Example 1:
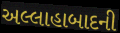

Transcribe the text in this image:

અલ્લાહાબાદની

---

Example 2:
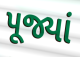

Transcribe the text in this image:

પૂજ્યાં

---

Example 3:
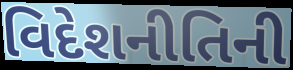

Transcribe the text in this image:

વિદેશનીતિની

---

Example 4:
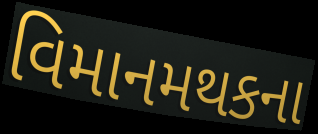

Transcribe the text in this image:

વિમાનમથકના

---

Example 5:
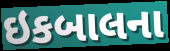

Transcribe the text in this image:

ઇકબાલના